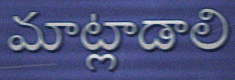
మాట్లాడాలి